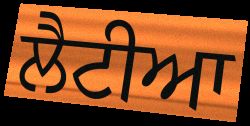
ਲੈਟੀਆ